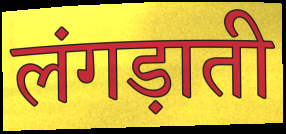
लंगड़ाती